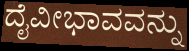
ದೈವೀಭಾವವನ್ನು